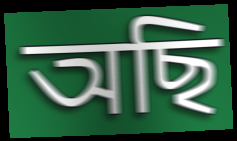
অছি